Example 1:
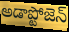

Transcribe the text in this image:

అడాప్టోజెన్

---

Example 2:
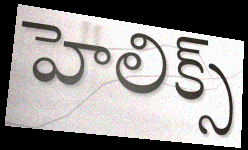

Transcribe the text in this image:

హెలిక్స్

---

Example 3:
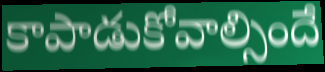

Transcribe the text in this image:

కాపాడుకోవాల్సిందే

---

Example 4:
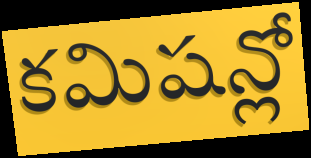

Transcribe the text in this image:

కమిషన్లో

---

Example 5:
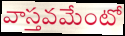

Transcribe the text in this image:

వాస్తవమేంటో